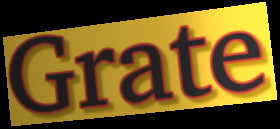
Grate